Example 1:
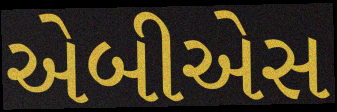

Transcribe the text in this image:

એબીએસ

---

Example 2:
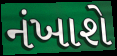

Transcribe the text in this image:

નંખાશે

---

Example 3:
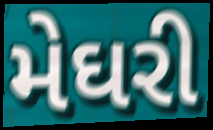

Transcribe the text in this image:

મેઘરી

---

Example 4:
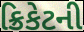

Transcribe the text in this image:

ક્રિકેટની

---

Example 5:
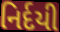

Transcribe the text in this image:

નિર્દયી